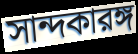
সান্দকারঙ্গ